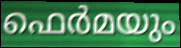
ഫെർമയും